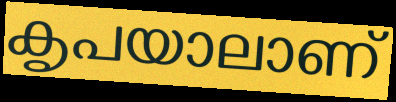
കൃപയാലാണ്